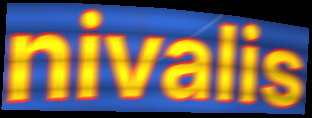
nivalis